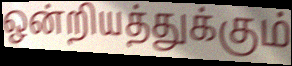
ஒன்றியத்துக்கும்